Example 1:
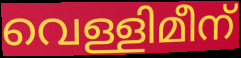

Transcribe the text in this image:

വെള്ളിമീന്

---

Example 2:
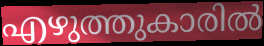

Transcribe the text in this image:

എഴുത്തുകാരിൽ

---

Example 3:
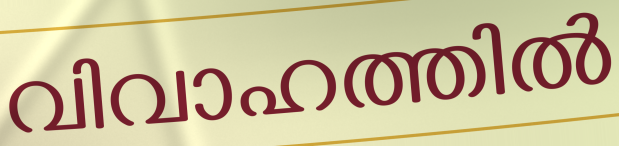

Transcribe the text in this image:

വിവാഹത്തിൽ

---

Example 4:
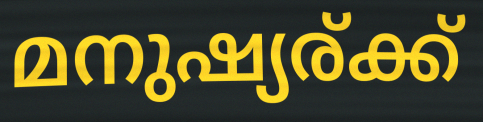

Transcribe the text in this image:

മനുഷ്യര്ക്ക്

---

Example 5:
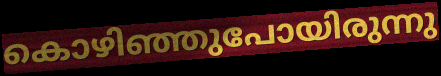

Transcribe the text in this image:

കൊഴിഞ്ഞുപോയിരുന്നു